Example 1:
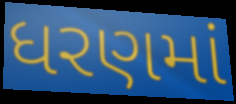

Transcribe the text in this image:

ધરણમાં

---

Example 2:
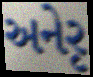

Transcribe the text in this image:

અનેરૃ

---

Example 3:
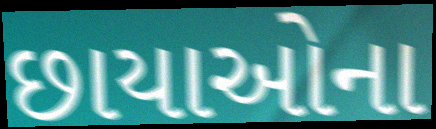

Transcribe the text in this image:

છાયાઓના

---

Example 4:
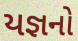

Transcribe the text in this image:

યજ્ઞનો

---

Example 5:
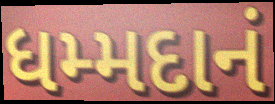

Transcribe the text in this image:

ધમ્મદાનં